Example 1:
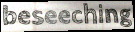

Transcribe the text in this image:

beseeching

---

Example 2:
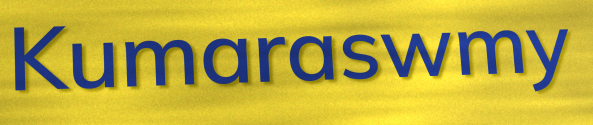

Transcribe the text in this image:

Kumaraswmy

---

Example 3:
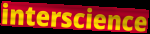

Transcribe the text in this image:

interscience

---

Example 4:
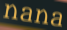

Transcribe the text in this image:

nana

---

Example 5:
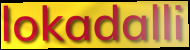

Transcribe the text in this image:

lokadalli